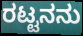
ರಟ್ಟನನು